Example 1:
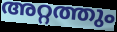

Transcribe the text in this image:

അറ്റത്തും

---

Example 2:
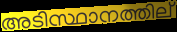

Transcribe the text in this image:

അടിസ്ഥാനത്തില്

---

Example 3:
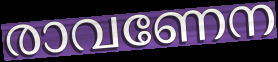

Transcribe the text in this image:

രാവണേന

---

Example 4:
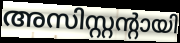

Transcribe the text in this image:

അസിസ്റ്റന്റായി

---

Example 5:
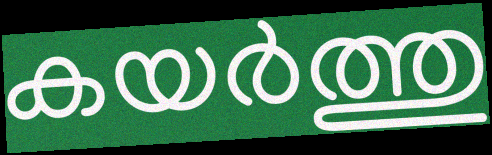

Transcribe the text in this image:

കയർത്തു